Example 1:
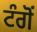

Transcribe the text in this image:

ਟੰਗੋਂ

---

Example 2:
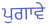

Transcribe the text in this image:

ਪੁਗਾਵੇ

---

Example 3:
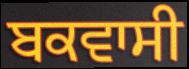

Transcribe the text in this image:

ਬਕਵਾਸੀ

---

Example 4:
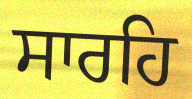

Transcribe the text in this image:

ਸਾਰਹਿ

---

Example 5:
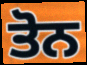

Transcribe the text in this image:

ਤੋਨ